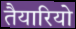
तैयारियो